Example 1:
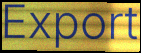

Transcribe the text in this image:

Export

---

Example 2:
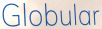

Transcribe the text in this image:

Globular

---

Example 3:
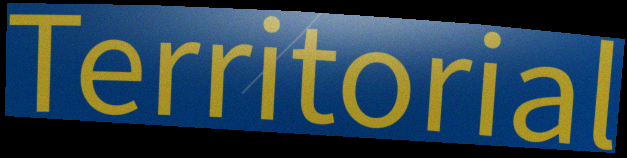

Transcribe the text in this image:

Territorial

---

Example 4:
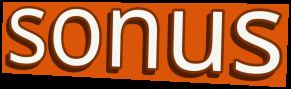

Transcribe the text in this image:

sonus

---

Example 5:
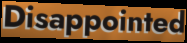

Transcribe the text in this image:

Disappointed